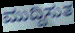
ಮುದ್ದಿಸುತ